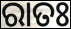
ରାତଃ